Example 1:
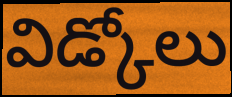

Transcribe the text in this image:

విడ్కోలు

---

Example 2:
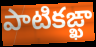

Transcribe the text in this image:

పాటికఙ్ఖా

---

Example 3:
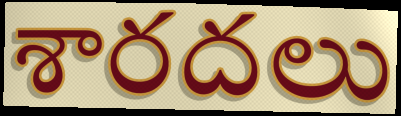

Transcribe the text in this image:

శారదలు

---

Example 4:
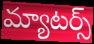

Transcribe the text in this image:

మ్యాటర్స్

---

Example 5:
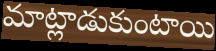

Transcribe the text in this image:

మాట్లాడుకుంటాయి